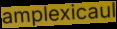
amplexicaul